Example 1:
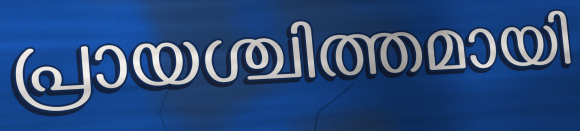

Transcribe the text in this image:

പ്രായശ്ചിത്തമായി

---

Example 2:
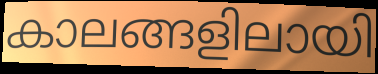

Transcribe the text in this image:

കാലങ്ങളിലായി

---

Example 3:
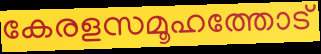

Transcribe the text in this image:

കേരളസമൂഹത്തോട്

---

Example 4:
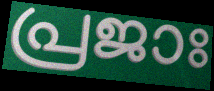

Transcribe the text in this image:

പ്രജാഃ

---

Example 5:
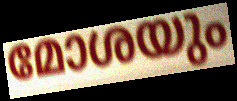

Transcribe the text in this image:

മോശയും